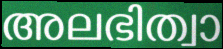
അലഭിത്വാ